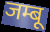
जम्बू